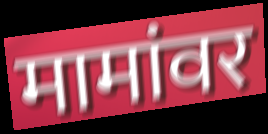
मामांवर